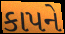
કાપને